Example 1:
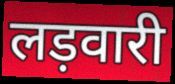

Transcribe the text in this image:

लड़वारी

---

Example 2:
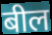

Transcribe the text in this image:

बील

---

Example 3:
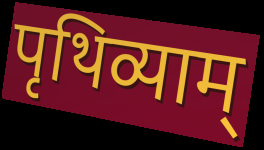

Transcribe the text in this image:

पृथिव्याम्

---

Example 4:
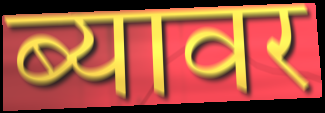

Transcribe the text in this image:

ब्यावर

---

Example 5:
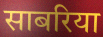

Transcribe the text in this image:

साबरिया